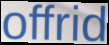
offrid